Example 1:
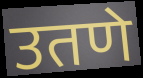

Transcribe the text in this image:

उतणे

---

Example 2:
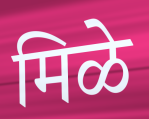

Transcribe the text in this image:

मिळे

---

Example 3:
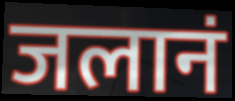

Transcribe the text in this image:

जलानं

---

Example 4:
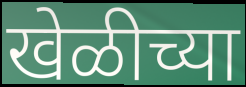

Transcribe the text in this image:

खेळीच्या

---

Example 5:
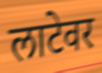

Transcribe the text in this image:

लाटेवर